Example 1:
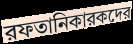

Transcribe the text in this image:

রফতানিকারকদের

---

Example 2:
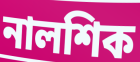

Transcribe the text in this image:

নালশিক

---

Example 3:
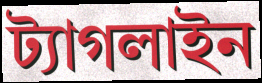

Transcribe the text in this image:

ট্যাগলাইন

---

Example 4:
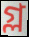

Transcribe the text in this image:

গ্ল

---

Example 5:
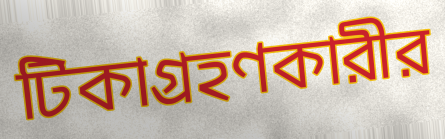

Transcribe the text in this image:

টিকাগ্রহণকারীর